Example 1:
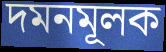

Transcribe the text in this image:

দমনমূলক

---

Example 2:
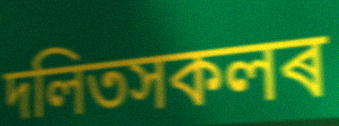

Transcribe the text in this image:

দলিতসকলৰ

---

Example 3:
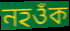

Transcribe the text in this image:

নহওঁক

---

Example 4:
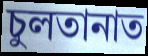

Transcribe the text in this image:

চুলতানাত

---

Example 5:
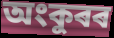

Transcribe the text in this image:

অংকুৰৰ